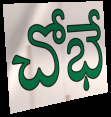
చోభే